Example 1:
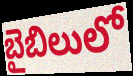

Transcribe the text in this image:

బైబిలులో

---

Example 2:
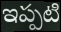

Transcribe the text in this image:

ఇప్పటి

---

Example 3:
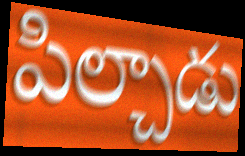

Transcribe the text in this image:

పిల్చాడు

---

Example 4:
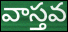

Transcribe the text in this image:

వాస్తవ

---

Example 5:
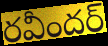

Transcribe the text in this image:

రవీందర్